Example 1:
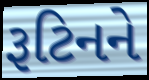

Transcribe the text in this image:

રૂટિનને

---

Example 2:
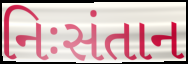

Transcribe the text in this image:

નિઃસંતાન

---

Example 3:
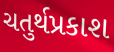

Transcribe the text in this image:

ચતુર્થપ્રકાશ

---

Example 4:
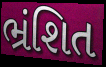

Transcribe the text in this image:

ભ્રંશિત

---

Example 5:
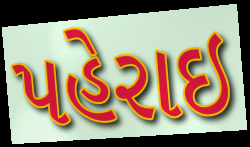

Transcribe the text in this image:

પહેરાઇ